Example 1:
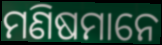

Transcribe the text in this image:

ମଣିଷମାନେ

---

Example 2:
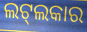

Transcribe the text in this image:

ଲଟ୍‌ଲକାର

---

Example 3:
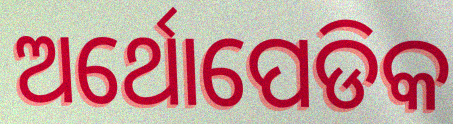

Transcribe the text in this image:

ଅର୍ଥୋପେଡିକ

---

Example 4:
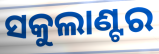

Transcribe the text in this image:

ସକୁଲାଣ୍ଟର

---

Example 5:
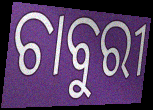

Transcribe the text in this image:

ଚାବୁରୀ